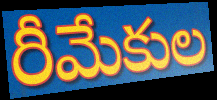
రీమేకుల